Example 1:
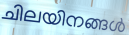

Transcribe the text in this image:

ചിലയിനങ്ങൾ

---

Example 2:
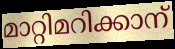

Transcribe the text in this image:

മാറ്റിമറിക്കാന്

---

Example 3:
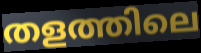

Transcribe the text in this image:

തളത്തിലെ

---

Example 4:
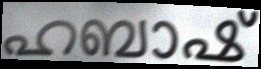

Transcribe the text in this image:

ഹബാഷ്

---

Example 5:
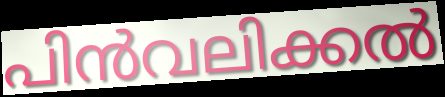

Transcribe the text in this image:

പിൻവലിക്കൽ